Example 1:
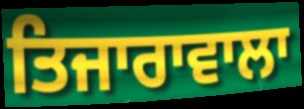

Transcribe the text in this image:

ਤਿਜਾਰਾਵਾਲਾ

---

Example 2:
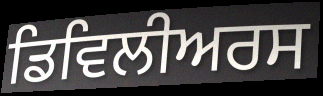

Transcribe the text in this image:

ਡਿਵਿਲੀਅਰਸ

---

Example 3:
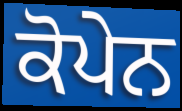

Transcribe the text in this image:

ਕੋਪੇਨ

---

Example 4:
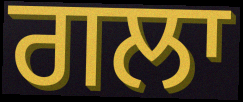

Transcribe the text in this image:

ਗਲਾ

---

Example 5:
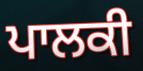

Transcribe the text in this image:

ਪਾਲਕੀ